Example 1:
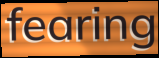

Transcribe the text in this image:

fearing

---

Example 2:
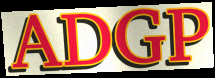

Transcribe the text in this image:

ADGP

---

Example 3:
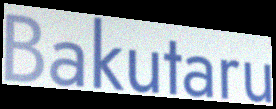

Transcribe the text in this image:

Bakutaru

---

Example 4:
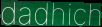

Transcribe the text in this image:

dadhich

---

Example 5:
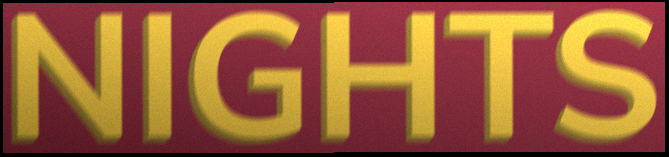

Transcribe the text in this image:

NIGHTS